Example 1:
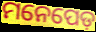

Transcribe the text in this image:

ମନେପେଡ଼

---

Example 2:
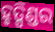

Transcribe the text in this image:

ହୃତ୍ପିଣ୍ଡର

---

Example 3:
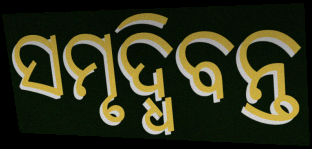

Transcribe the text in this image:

ସମୃଦ୍ଧିବନ୍ତ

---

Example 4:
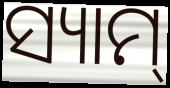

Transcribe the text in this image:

ସ୍ୟାମ୍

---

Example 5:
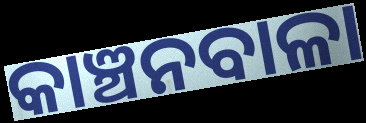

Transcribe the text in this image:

କାଞ୍ଚନବାଳା